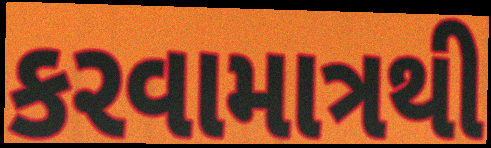
કરવામાત્રથી